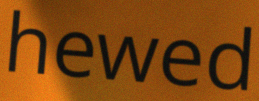
hewed